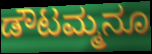
ಡೌಟಮ್ಮನೂ